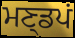
ਮਣ੍ਡਪਂ